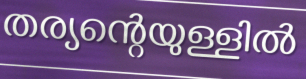
തര്യന്റെയുള്ളിൽ